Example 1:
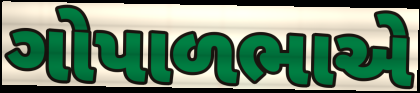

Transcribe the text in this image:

ગોપાળભાએ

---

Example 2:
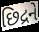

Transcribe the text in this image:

છિદ્રને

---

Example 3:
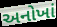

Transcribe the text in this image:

અનોખાં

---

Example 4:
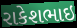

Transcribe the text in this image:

રાકેશભાઇ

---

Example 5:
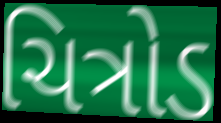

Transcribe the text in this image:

ચિત્રોડ